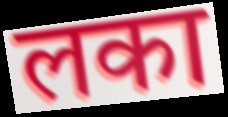
लका